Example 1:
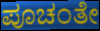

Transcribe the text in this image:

ಪೂಚಂತೇ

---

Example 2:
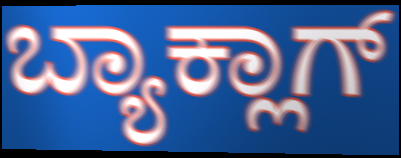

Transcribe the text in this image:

ಬ್ಯಾಕ್ಲಾಗ್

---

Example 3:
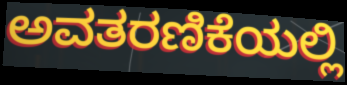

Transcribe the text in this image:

ಅವತರಣಿಕೆಯಲ್ಲಿ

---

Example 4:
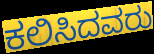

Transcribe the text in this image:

ಕಲಿಸಿದವರು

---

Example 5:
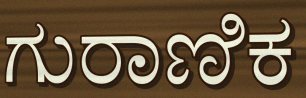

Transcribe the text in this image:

ಗುರಾಣಿಕ